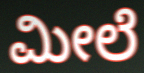
ಮೀಲೆ